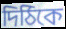
দিঠিকে